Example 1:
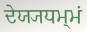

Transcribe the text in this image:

ਦੇਯ੍ਯਧਮ੍ਮਂ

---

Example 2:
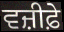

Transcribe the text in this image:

ਵਜ਼ੀਫ਼ੇ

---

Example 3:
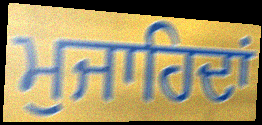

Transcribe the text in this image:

ਮੁਜਾਹਿਦਾਂ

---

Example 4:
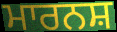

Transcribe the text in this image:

ਮਾਰਨਸ਼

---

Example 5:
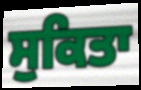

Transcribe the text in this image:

ਸੁਕਿਤਾ